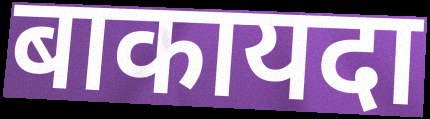
बाकायदा